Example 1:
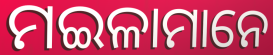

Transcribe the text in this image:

ମଇଳାମାନେ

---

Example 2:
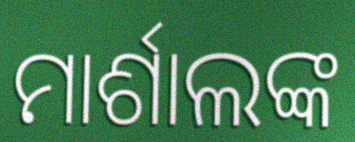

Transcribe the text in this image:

ମାର୍ଶାଲଙ୍କ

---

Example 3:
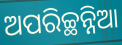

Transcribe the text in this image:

ଅପରିଚ୍ଛନ୍ନିଆ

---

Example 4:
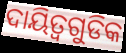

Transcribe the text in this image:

ଦାୟିତ୍ୱଗୁଡିକ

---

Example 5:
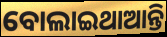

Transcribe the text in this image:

ବୋଲାଇଥାଆନ୍ତି